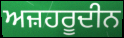
ਅਜ਼ਹਰੂਦੀਨ